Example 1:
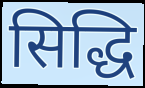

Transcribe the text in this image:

सिद्धि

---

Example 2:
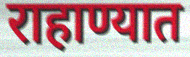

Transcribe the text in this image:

राहाण्यात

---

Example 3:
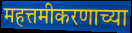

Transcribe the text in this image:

महत्तमीकरणाच्या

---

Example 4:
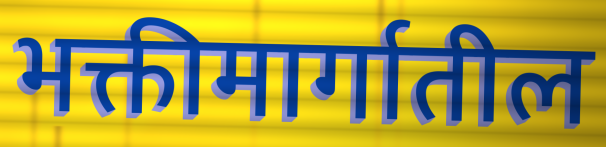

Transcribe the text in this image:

भक्तीमार्गातील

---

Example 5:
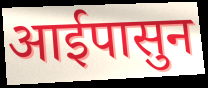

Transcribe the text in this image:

आईपासुन